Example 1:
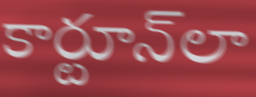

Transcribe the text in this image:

కార్టూన్‌లా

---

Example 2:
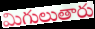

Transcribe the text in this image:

మిగులుతారు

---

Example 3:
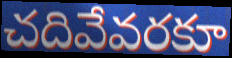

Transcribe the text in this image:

చదివేవరకూ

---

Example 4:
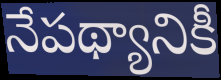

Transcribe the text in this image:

నేపథ్యానికీ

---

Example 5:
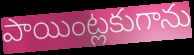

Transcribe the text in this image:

పాయింట్లకుగాను